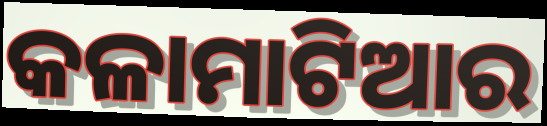
କଳାମାଟିଆର